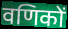
वणिकों